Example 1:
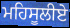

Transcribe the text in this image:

ਮਹਿਸੂਲੀਏ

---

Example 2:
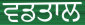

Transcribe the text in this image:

ਵਡਤਾਲ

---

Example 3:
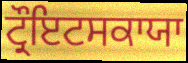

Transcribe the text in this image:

ਟ੍ਰੌਇਟਸਕਾਯਾ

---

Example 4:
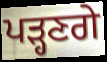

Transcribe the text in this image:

ਪੜ੍ਹਣਗੇ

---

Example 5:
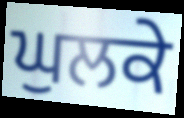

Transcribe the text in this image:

ਘੁਲਕੇ